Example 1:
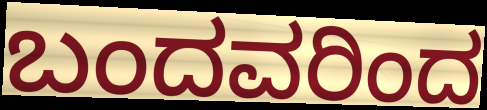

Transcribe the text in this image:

ಬಂದವರಿಂದ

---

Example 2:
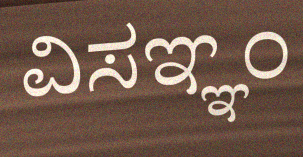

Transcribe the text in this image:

ವಿಸಞ್ಞಂ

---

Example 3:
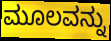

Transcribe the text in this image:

ಮೂಲವನ್ನು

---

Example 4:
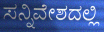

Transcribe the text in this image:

ಸನ್ನಿವೇಶದಲ್ಲಿ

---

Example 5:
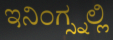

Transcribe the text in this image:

ಇನಿಂಗ್ಸ್ನಲ್ಲಿ